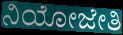
ನಿಯೋಜೇತಿ